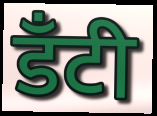
डँटी